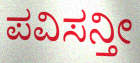
ಪವಿಸನ್ತೀ